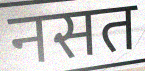
नसत